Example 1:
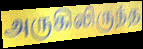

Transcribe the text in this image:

அருகிலிருந்த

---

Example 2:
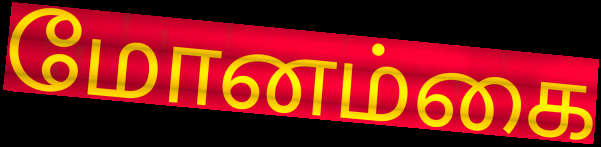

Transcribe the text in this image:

மோனம்கை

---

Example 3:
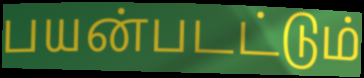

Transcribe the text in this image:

பயன்படட்டும்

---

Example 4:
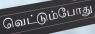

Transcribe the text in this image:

வெட்டும்போது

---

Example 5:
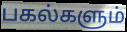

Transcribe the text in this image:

பகல்களும்